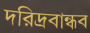
দরিদ্রবান্ধব